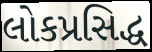
લોકપ્રસિદ્ધ